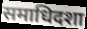
समाधिदशा